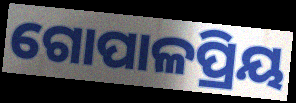
ଗୋପାଳପ୍ରିୟ